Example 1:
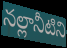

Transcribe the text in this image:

నల్లానీటిని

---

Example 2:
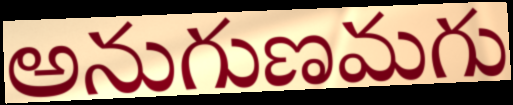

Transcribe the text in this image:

అనుగుణమగు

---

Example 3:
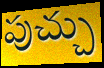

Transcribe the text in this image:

పుచ్చు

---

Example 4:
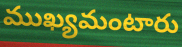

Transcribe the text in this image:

ముఖ్యమంటారు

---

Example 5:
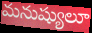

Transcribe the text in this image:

మనుష్యులూ